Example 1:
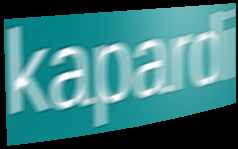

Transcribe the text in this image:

kapardi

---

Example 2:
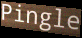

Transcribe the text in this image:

Pingle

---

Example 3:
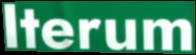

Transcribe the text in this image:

Iterum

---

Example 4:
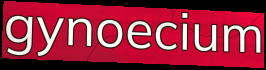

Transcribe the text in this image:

gynoecium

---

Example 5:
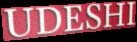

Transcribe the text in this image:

UDESHI